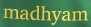
madhyam